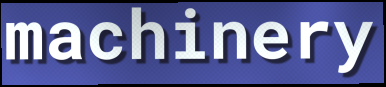
machinery